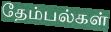
தேம்பல்கள்